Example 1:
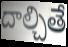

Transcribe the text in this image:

దాల్చితే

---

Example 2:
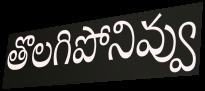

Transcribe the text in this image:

తొలగిపోనివ్వు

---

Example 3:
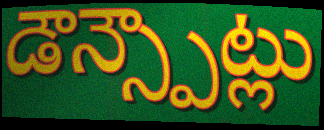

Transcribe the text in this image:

డౌన్స్పౌట్లు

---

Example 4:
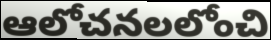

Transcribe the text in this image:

ఆలోచనలలోంచి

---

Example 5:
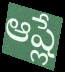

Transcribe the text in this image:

ఆష్లే